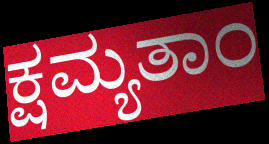
ಕ್ಷಮ್ಯತಾಂ